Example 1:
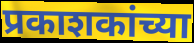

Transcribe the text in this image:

प्रकाशकांच्या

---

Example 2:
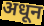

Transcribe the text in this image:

अधून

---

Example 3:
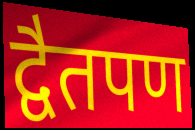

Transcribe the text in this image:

द्वैतपण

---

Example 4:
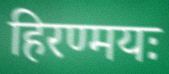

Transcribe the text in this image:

हिरण्मयः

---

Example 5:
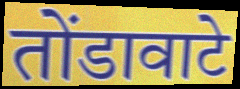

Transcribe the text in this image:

तोंडावाटे